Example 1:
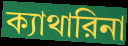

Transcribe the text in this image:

ক্যাথারিনা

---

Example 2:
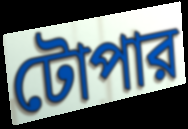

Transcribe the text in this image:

টোপার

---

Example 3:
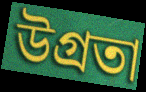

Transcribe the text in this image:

উগ্রতা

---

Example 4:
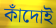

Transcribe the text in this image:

কাঁদোই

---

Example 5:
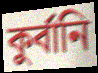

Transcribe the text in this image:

কুর্বানি